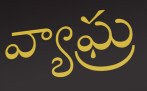
వ్యాఘ్ర